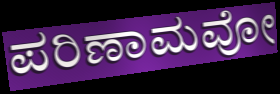
ಪರಿಣಾಮವೋ